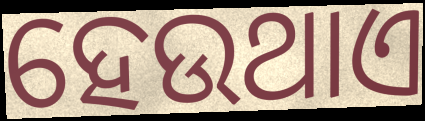
ହେଉଥାଏ